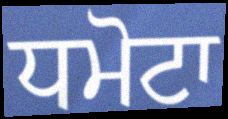
ਧਮੋਟਾ